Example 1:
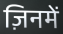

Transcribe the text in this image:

ज़िनमें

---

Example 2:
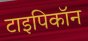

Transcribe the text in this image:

टाइपिकॉन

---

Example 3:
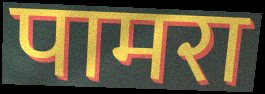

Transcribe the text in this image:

पामरा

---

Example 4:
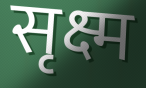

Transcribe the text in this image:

सृक्ष्म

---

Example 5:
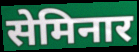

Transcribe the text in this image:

सेमिनार